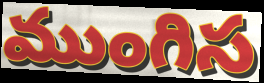
ముంగిస